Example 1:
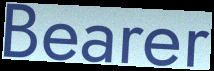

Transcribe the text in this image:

Bearer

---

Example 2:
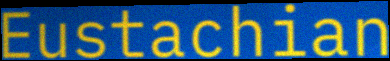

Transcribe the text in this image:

Eustachian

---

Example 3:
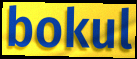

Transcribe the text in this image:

bokul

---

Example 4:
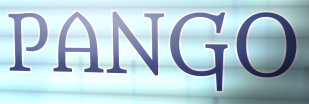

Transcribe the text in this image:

PANGO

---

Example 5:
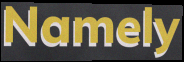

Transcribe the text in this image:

Namely